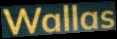
Wallas